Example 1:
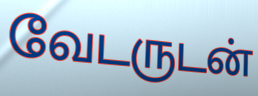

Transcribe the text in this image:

வேடருடன்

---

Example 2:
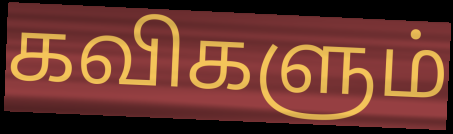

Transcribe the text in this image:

கவிகளும்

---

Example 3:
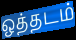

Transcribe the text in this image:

ஒத்தடம்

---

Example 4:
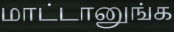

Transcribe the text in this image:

மாட்டானுங்க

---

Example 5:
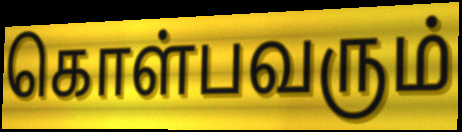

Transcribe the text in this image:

கொள்பவரும்